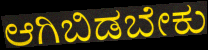
ಆಗಿಬಿಡಬೇಕು